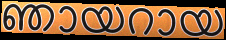
ഞായറായ